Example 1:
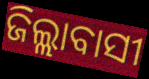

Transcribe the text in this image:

ଜିଲ୍ଲାବାସୀ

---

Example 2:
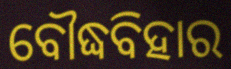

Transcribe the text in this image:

ବୌଦ୍ଧବିହାର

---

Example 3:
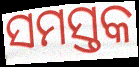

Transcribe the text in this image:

ସମସ୍ତକ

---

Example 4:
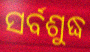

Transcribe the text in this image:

ସର୍ବଶୁଦ୍ଧ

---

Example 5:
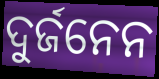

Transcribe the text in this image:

ଦୁର୍ଜନେନ